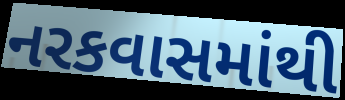
નરકવાસમાંથી